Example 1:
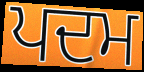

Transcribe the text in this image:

ਪਦਮ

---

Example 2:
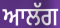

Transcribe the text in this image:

ਆਲੱਗ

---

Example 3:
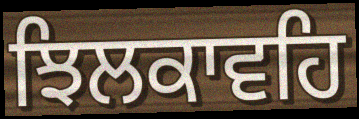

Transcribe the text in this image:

ਝਿਲਕਾਵਹਿ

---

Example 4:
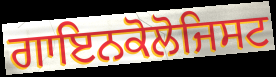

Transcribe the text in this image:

ਗਾਇਨਕੋਲੋਜਿਸਟ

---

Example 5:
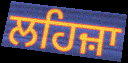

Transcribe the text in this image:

ਲਹਿਜ਼ਾ